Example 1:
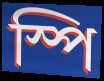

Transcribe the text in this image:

স্পি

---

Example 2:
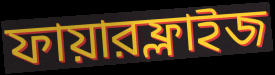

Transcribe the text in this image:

ফায়ারফ্লাইজ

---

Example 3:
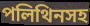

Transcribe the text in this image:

পলিথিনসহ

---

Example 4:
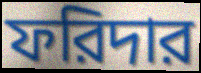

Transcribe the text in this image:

ফরিদার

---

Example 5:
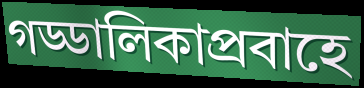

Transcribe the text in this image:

গড্ডালিকাপ্রবাহে